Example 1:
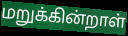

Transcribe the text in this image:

மறுக்கின்றாள்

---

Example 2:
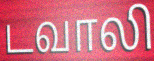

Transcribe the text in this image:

டவாலி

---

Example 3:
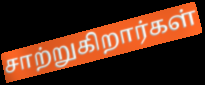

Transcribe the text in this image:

சாற்றுகிறார்கள்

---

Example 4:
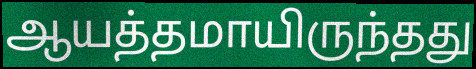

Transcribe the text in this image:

ஆயத்தமாயிருந்தது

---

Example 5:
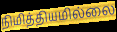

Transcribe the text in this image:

நிமித்தியமில்லை